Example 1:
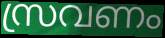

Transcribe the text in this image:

സ്രവണം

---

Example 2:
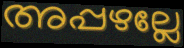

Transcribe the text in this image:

അപ്പഴല്ലേ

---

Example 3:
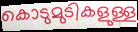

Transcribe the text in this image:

കൊടുമുടികളുള്ള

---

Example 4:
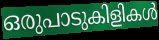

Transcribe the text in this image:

ഒരുപാടുകിളികൾ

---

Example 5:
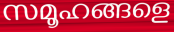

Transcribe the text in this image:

സമൂഹങ്ങളെ